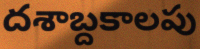
దశాబ్దకాలపు